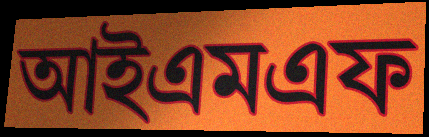
আইএমএফ